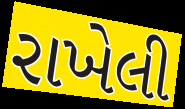
રાખેલી